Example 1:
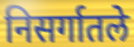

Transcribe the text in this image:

निसर्गातले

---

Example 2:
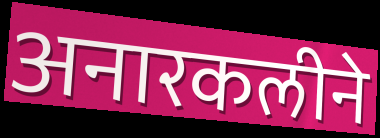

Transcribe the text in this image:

अनारकलीने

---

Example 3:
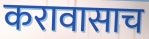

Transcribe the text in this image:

करावासाच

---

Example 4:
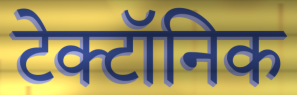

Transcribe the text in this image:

टेक्टॉनिक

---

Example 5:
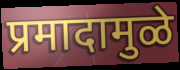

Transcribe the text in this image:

प्रमादामुळे